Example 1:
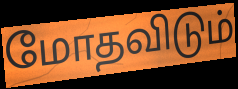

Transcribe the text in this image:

மோதவிடும்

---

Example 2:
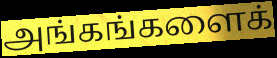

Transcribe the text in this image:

அங்கங்களைக்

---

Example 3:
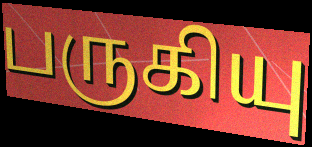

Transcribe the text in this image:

பருகியு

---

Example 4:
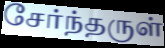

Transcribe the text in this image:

சேர்ந்தருள்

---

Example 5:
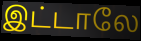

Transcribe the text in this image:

இட்டாலே